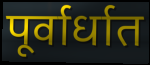
पूर्वार्धात